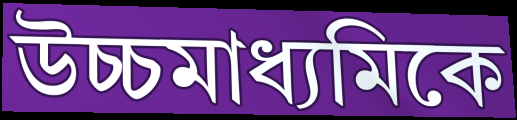
উচ্চমাধ্যমিকে